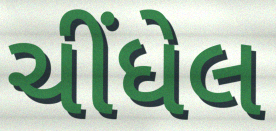
ચીંધેલ